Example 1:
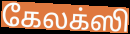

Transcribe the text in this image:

கேலக்ஸி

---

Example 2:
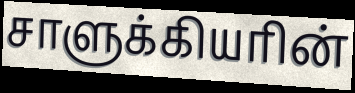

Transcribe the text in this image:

சாளுக்கியரின்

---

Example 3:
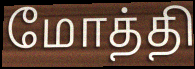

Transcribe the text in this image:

மோத்தி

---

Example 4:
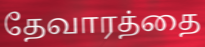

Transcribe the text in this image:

தேவாரத்தை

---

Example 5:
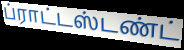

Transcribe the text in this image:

ப்ராட்டஸ்டண்ட்